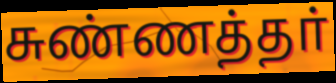
சுண்ணத்தர்